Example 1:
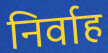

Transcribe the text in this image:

निर्वाह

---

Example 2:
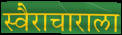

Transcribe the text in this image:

स्वैराचाराला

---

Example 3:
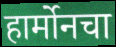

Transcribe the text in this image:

हार्मोनचा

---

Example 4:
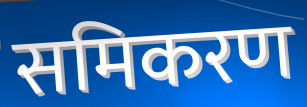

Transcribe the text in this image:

समिकरण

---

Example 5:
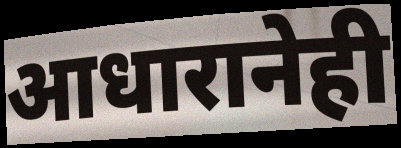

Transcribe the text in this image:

आधारानेही